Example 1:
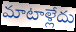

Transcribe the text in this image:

మాటాళ్లేదు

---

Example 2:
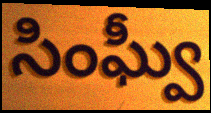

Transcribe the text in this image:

సింఘ్వీ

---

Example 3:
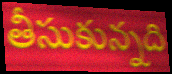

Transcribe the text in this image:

తీసుకున్నది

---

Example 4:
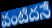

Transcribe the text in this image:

వంటిదనే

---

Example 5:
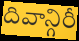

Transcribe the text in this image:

దివాన్గిరీ